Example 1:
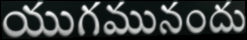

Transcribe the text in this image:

యుగమునందు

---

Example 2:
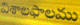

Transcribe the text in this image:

విశాలఫాలము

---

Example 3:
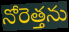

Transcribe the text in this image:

నోరెత్తను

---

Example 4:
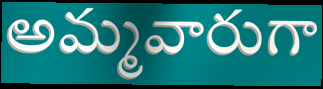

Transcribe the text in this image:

అమ్మవారుగా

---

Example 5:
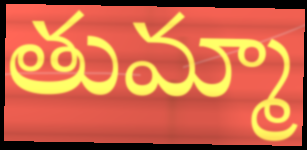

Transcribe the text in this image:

తుమ్మా